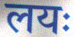
लयः